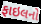
ફાઇલનો